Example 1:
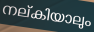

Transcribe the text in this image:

നല്‌കിയാലും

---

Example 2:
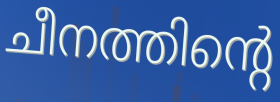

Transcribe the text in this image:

ചീനത്തിന്റെ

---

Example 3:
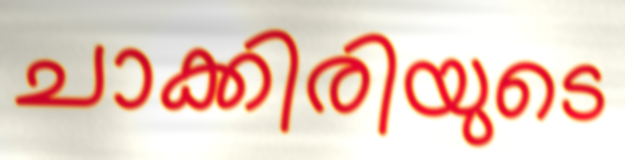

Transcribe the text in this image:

ചാക്കിരിയുടെ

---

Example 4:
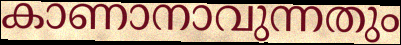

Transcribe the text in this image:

കാണാനാവുന്നതും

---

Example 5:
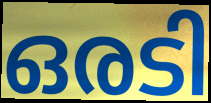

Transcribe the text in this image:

ഒരടി